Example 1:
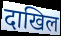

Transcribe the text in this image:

दाखिल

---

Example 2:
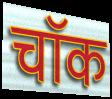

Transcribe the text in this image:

चॉक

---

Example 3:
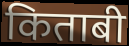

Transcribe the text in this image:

किताबी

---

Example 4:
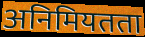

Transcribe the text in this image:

अनिमियतता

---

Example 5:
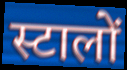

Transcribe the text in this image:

स्टालों